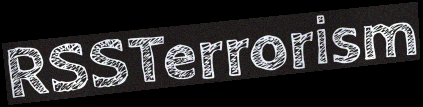
RSSTerrorism